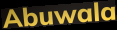
Abuwala